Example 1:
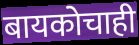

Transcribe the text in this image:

बायकोचाही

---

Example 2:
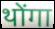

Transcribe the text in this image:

थोंगा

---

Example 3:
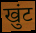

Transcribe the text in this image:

खुंट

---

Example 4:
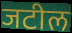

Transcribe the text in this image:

जटील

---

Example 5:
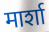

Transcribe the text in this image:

मार्शा